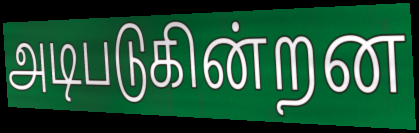
அடிபடுகின்றன